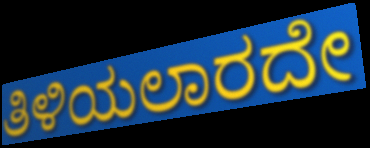
ತಿಳಿಯಲಾರದೇ